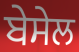
ਬੇਸੇਲ